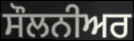
ਸੌਲਨੀਅਰ